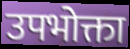
उपभोक्ता